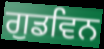
ਗੁਡਵਿਨ